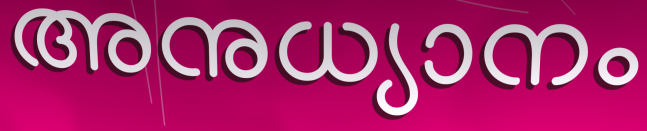
അനുധ്യാനം